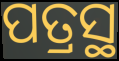
ପତ୍ରସ୍ଥ